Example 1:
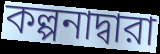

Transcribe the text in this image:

কল্পনাদ্বারা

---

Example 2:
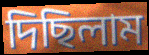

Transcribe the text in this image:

দিছিলাম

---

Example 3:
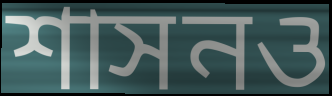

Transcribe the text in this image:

শাসনও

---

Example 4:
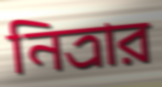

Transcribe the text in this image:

নিত্রার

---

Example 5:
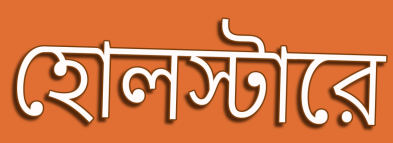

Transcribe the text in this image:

হোলস্টারে